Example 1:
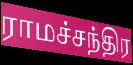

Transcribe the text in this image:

ராமச்சந்திர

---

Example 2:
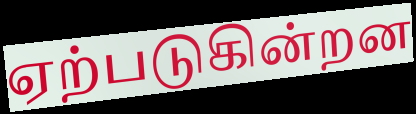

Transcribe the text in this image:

ஏற்படுகின்றன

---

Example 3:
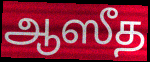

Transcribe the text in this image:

ஆஸீத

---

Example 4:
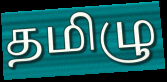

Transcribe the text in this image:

தமிழு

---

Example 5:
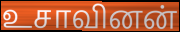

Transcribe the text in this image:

உசாவினன்